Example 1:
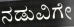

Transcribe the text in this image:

ನಡುವಿಗೇ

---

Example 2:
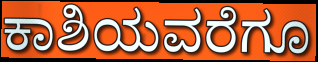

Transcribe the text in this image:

ಕಾಶಿಯವರೆಗೂ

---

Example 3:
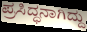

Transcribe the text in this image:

ಪ್ರಸಿದ್ಧನಾಗಿದ್ದು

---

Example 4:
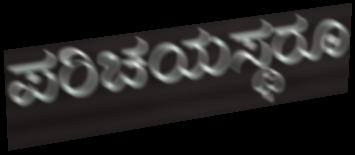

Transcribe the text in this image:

ಪರಿಚಯಸ್ಥರೂ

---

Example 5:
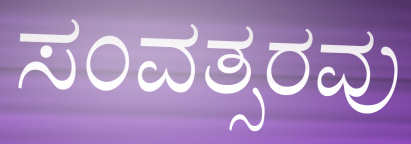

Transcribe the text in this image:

ಸಂವತ್ಸರವು